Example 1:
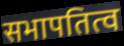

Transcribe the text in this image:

सभापतित्व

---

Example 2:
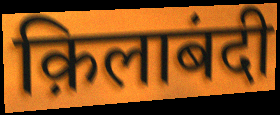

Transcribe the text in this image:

क़िलाबंदी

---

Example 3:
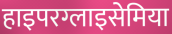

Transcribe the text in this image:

हाइपरग्लाइसेमिया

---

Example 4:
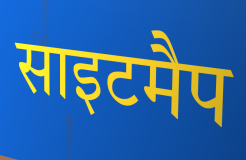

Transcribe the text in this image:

साइटमैप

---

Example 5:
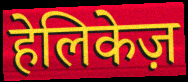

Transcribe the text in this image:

हेलिकेज़